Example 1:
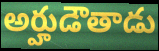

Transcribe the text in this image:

అర్హుడౌతాడు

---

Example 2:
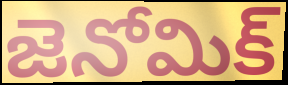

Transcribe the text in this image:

జెనోమిక్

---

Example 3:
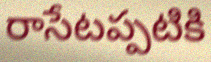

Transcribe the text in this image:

రాసేటప్పటికి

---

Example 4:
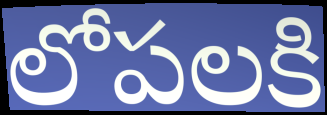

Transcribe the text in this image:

లోపలకి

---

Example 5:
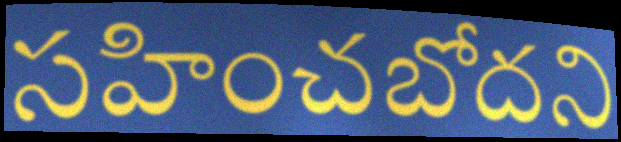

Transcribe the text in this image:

సహించబోదని